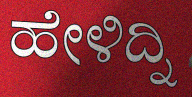
ಹೇಳಿದ್ನಿ